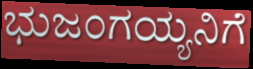
ಭುಜಂಗಯ್ಯನಿಗೆ